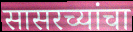
सासरच्यांचा